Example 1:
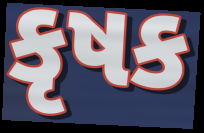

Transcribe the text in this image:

કૃષક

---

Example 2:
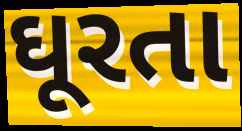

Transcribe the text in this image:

ઘૂરતા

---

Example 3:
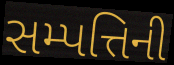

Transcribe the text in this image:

સમ્પત્તિની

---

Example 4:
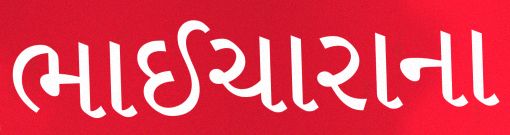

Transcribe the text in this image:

ભાઈચારાના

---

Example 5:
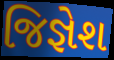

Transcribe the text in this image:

જિજ્ઞેશ